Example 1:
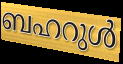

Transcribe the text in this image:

ബഹറുൾ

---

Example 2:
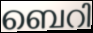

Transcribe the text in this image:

ബെറി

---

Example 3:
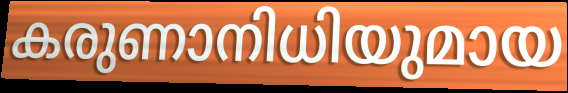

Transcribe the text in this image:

കരുണാനിധിയുമായ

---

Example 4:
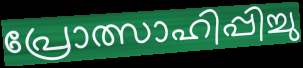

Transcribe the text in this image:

പ്രോത്സാഹിപ്പിച്ചു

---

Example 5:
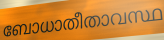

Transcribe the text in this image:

ബോധാതീതാവസ്ഥ